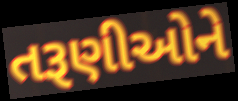
તરૂણીઓને